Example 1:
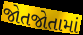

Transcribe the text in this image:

જોતજોતામાં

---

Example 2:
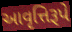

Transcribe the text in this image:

આવૃત્તિરૂપે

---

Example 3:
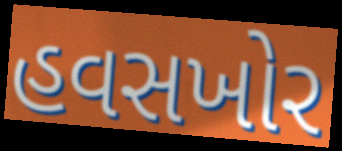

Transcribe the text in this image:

હવસખોર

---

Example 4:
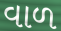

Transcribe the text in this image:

વાળ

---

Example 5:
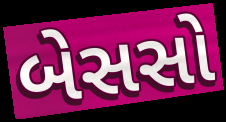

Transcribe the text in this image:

બેસસો